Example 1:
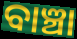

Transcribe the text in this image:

ବାଞ୍ଚା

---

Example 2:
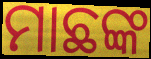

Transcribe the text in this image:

ମାଛଙ୍କ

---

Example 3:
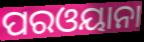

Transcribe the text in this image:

ପରଓୟାନା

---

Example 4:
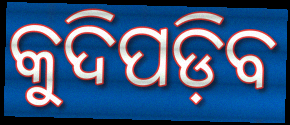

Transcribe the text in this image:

କୁଦିପଡ଼ିବ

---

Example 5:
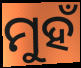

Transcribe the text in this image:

ମୁହଁ